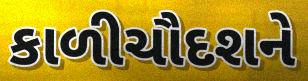
કાળીચૌદશને